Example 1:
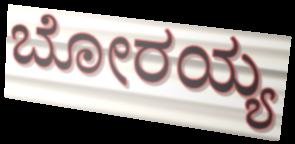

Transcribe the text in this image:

ಬೋರಯ್ಯ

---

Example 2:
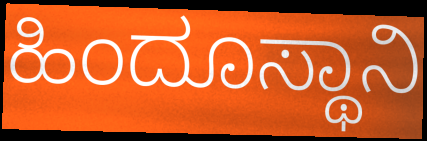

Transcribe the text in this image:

ಹಿಂದೂಸ್ಥಾನಿ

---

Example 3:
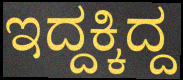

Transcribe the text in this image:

ಇದ್ದಕ್ಕಿದ್ದ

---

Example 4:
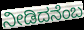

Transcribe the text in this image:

ನೀಡಿದನೆಂಬ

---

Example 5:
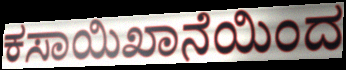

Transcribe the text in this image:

ಕಸಾಯಿಖಾನೆಯಿಂದ